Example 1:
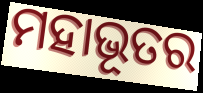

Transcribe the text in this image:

ମହାଭୂତର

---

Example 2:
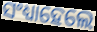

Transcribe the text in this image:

ସଂଧ୍ୟାହେଲେ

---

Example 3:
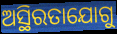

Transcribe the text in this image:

ଅସ୍ଥିରତାଯୋଗୁ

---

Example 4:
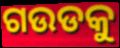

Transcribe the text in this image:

ଗଉଡକୁ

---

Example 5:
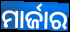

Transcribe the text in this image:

ମାର୍ଜାର